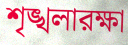
শৃঙ্খলারক্ষা